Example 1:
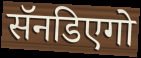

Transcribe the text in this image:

सॅनडिएगो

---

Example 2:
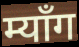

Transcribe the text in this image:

म्याँग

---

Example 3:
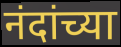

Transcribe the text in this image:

नंदांच्या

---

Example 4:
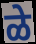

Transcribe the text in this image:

ळे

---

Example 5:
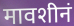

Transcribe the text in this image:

मावशीनं